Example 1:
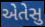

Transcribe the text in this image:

એતેસુ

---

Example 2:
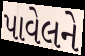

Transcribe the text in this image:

પાવેલને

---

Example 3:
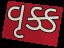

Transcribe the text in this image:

વૃક્ક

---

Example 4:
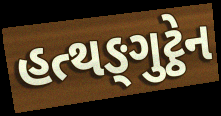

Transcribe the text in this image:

હત્થઙ્ગુટ્ઠેન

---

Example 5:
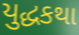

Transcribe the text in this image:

યુદ્ધકથા